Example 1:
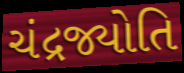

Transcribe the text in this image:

ચંદ્રજ્યોતિ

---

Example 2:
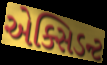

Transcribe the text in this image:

એક્સિડન્ટ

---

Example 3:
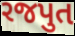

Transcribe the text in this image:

રજપુત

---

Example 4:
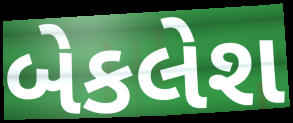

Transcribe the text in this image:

બેકલેશ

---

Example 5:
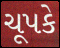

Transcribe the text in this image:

ચૂપકે